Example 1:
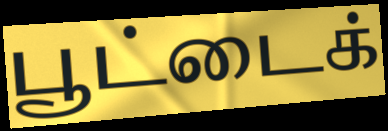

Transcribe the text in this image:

பூட்டைக்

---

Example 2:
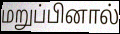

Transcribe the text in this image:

மறுப்பினால்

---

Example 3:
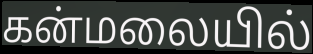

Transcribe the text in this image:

கன்மலையில்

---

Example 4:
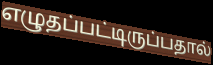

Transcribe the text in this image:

எழுதப்பட்டிருப்பதால்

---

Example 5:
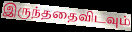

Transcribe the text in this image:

இருந்ததைவிடவும்